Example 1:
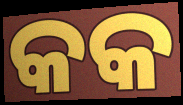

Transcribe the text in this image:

କକ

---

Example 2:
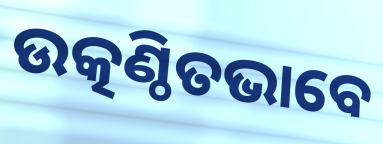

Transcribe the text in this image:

ଉତ୍କଣ୍ଠିତଭାବେ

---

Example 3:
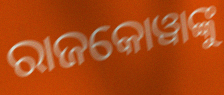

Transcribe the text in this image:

ରାଜକୋୱାଙ୍କୁ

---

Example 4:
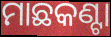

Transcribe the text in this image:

ମାଛକଣ୍ଟା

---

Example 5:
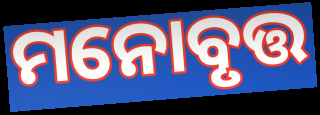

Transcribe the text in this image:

ମନୋବୃତ୍ତ